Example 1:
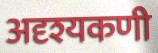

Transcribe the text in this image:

अदृश्यकणी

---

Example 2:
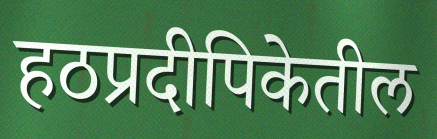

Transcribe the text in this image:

हठप्रदीपिकेतील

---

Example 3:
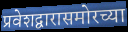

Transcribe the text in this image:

प्रवेशद्वारासमोरच्या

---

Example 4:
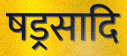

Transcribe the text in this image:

षड्रसादि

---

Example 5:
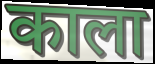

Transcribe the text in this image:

काला